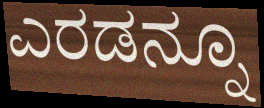
ಎರಡನ್ನೂ